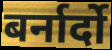
बर्नार्दो